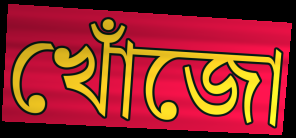
খোঁজো